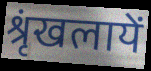
श्रृंखलायें